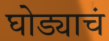
घोड्याचं